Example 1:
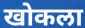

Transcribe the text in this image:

खोकला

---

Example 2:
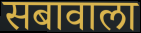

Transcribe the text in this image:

सबावाला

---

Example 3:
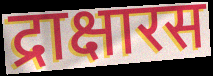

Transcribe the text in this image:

द्राक्षारस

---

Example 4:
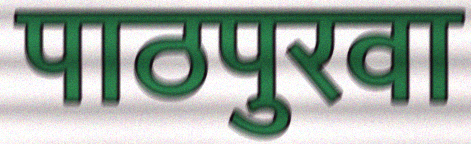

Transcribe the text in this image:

पाठपुरवा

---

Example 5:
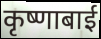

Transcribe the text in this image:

कृष्णाबाई